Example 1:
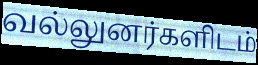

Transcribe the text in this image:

வல்லுனர்களிடம்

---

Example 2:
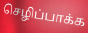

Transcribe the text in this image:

செழிப்பாக்க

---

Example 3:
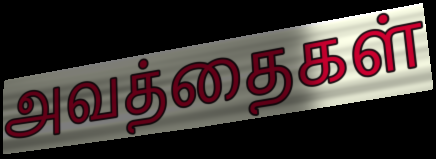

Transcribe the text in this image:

அவத்தைகள்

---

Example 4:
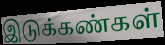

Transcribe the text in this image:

இடுக்கண்கள்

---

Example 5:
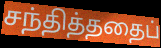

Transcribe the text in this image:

சந்தித்ததைப்